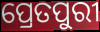
ପ୍ରେତପୁରୀ